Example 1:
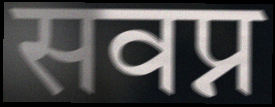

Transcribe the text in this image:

सवप्न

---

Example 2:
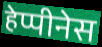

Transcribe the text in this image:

हेप्पीनेस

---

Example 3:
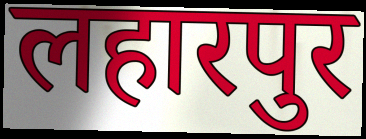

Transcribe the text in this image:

लहारपुर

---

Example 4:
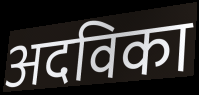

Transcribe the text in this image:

अदविका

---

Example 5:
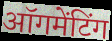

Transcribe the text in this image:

ऑगमेंटिंग